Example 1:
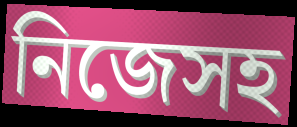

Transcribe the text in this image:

নিজেসহ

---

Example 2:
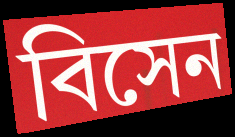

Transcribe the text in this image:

বিসেন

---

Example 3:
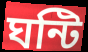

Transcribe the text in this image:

ঘন্টি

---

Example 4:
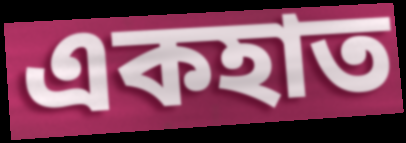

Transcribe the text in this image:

একহাত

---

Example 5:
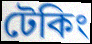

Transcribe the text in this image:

টেকিং